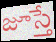
జూస్తే